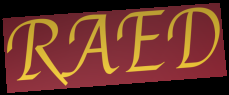
RAED